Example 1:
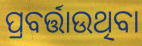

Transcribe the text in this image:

ପ୍ରବର୍ତ୍ତାଉଥିବା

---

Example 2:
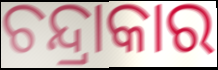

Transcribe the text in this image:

ଚନ୍ଦ୍ରାକାର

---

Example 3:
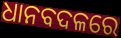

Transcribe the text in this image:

ଧାନବଦଳରେ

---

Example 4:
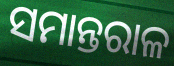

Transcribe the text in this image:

ସମାନ୍ତରାଳ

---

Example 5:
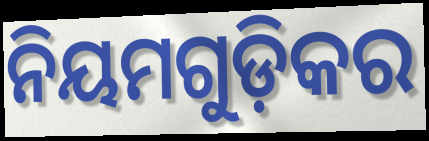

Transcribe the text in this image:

ନିୟମଗୁଡ଼ିକର